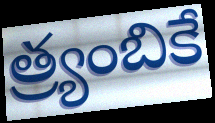
త్ర్యంబికే